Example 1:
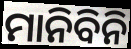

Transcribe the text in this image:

ମାନିବିନି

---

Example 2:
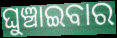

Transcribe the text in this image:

ଘୁଞ୍ଚାଇବାର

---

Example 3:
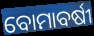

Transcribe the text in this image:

ବୋମାବର୍ଷୀ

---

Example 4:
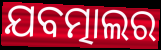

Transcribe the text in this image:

ଯବତ୍ମାଲର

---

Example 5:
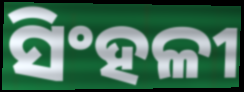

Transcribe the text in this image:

ସିଂହଳୀ